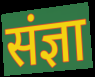
संज्ञा